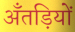
अँतड़ियों